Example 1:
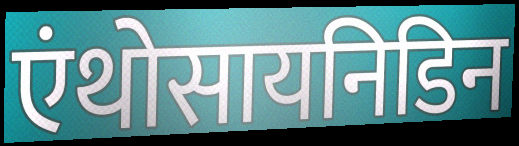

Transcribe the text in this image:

एंथोसायनिडिन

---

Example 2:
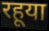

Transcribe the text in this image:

रहूया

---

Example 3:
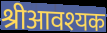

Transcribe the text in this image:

श्रीआवश्यक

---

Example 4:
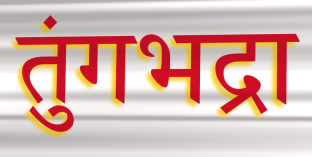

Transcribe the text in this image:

तुंगभद्रा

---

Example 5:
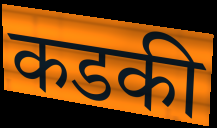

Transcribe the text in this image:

कडकी